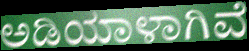
ಅಡಿಯಾಳಾಗಿವೆ